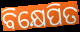
ବିକ୍ଷେପିତ